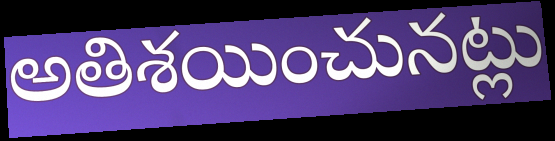
అతిశయించునట్లు